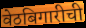
वेठबिगारीची